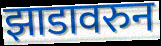
झाडावरुन